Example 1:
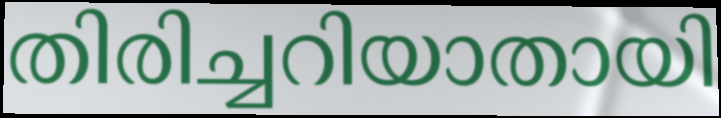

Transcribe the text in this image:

തിരിച്ചറിയാതായി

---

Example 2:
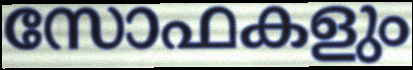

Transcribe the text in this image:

സോഫകളും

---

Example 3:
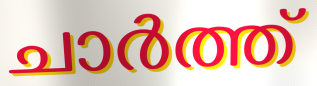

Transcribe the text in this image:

ചാർത്ത്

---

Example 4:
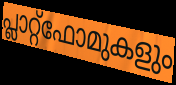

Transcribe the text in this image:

പ്ലാറ്റ്ഫോമുകളും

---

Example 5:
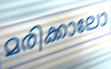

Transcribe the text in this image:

മരിക്കാലോ